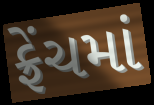
ફ્રેંચમાં